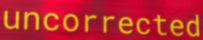
uncorrected